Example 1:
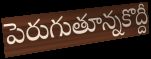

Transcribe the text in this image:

పెరుగుతూన్నకొద్దీ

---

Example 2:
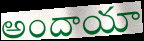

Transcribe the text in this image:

అందాయా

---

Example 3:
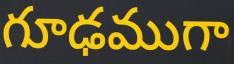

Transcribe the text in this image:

గూఢముగా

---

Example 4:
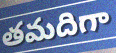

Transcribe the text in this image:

తమదిగా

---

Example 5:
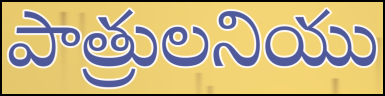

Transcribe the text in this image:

పాత్రులనియు